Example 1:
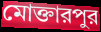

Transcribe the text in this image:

মোক্তারপুর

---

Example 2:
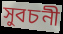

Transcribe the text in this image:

সুবচনী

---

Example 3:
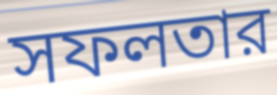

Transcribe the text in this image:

সফলতার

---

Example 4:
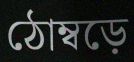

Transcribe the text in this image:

ঠোম্বড়ে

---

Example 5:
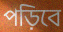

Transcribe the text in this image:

পড়িবে